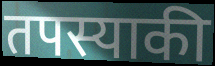
तपस्याकी